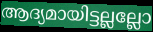
ആദ്യമായിട്ടല്ലല്ലോ